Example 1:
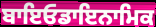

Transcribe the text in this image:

ਬਾਇਓਡਾਇਨਾਮਿਕ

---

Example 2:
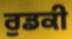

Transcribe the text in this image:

ਰੁਡਕੀ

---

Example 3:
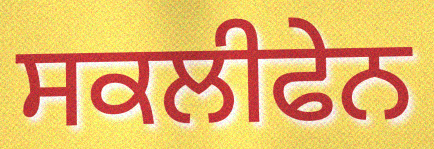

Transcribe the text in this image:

ਸਕਲੀਫੇਨ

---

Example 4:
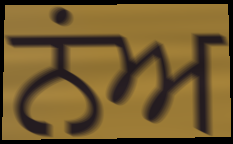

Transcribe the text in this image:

ਨਂਅ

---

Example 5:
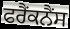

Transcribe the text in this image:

ਫਰੈਂਕਨੈਂਸ